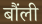
बौंली